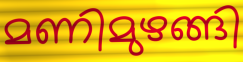
മണിമുഴങ്ങി